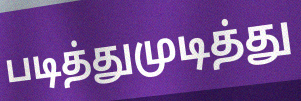
படித்துமுடித்து